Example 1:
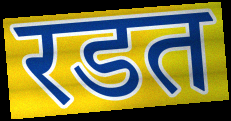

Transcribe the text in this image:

रडत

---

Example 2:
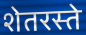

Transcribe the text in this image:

शेतरस्ते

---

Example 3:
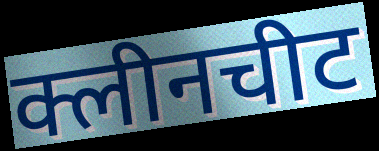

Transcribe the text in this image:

क्लीनचीट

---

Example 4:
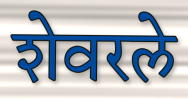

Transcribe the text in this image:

शेवरले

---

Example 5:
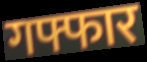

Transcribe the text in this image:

गफ्फार